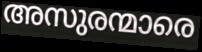
അസുരന്മാരെ